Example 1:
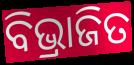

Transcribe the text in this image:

ବିଭ୍ରାଜିତ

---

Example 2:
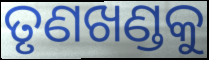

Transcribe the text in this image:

ତୃଣଖଣ୍ଡକୁ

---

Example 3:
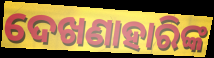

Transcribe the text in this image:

ଦେଖଣାହାରିଙ୍କ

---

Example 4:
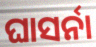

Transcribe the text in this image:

ଘାସର୍ନା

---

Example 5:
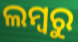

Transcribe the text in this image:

ଲମ୍ବରୁ